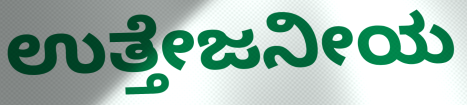
ಉತ್ತೇಜನೀಯ